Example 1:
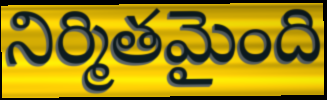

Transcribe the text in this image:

నిర్మితమైంది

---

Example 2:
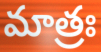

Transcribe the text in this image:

మాత్రః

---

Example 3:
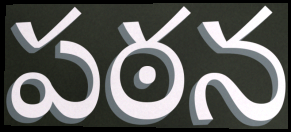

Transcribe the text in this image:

పఠన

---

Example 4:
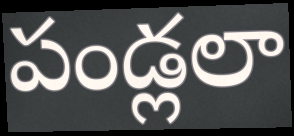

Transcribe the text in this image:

పండ్లలా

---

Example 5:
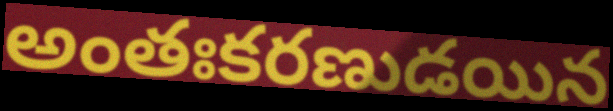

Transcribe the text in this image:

అంతఃకరణుడయిన